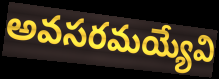
అవసరమయ్యేవి